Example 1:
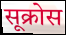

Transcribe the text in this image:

सूक्रोस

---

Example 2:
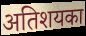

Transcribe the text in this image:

अतिशयका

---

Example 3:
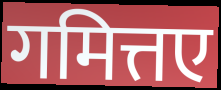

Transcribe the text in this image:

गमित्तए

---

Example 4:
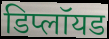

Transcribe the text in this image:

डिप्लॉयड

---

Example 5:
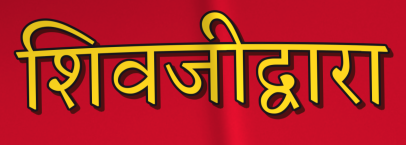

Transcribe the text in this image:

शिवजीद्वारा